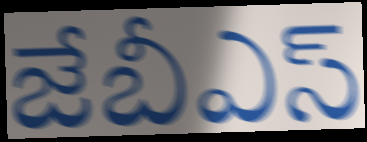
జేబీఎస్